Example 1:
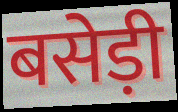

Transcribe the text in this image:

बसेड़ी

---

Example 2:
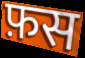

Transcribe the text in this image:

फ़स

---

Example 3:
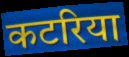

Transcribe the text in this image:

कटरिया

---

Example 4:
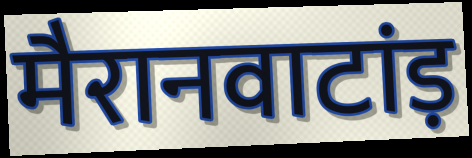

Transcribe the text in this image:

मैरानवाटांड़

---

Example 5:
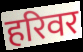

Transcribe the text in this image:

हरिवर